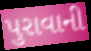
પુરાવાની